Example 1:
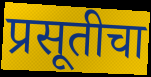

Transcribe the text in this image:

प्रसूतीचा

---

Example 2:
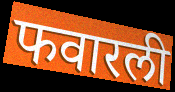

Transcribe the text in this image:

फवारली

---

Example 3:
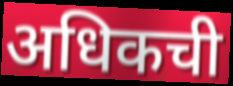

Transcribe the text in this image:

अधिकची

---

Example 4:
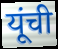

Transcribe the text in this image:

यूंची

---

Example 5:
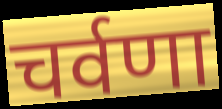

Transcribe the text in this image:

चर्वणा